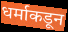
धर्माकडून